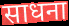
साधना